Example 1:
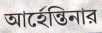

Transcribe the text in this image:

আর্হেন্তিনার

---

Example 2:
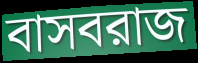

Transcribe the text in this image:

বাসবরাজ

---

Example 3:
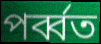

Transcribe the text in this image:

পর্ব্বত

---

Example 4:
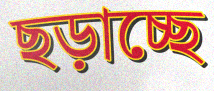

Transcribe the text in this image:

ছড়াচ্ছে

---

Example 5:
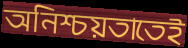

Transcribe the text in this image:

অনিশ্চয়তাতেই